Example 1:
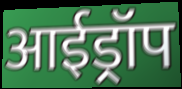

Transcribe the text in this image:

आईड्रॉप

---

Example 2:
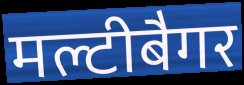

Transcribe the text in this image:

मल्‍टीबैगर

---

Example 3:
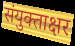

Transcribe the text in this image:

संयुक्ताक्षर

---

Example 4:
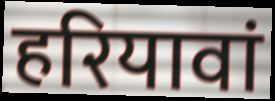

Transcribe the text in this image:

हरियावां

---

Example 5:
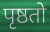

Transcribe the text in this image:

पृष्ठतो